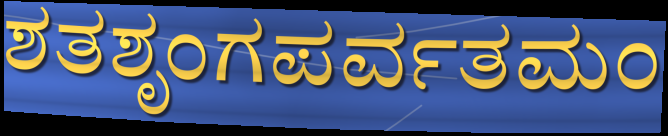
ಶತಶೃಂಗಪರ್ವತಮಂ